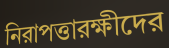
নিরাপত্তারক্ষীদের